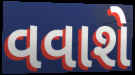
વવાશે